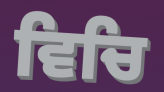
ਵਿਚਿ